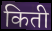
किती